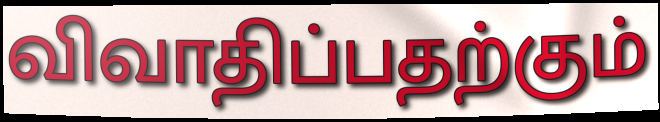
விவாதிப்பதற்கும்